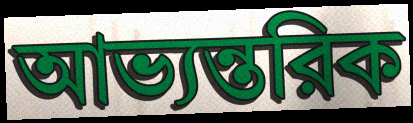
আভ্যন্তরিক